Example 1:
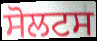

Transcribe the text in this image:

ਸੋਲਟਸ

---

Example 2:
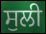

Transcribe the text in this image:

ਸੁਲੀ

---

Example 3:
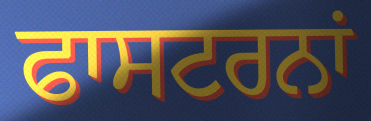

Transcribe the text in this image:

ਫਾਸਟਰਨਾਂ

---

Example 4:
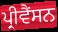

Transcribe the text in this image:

ਪ੍ਰੀਵੈਂਸਨ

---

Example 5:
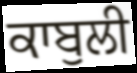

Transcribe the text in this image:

ਕਾਬੁਲੀ